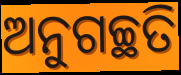
ଅନୁଗଚ୍ଛତି